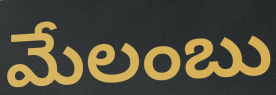
మేలంబు